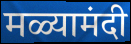
मळ्यामंदी